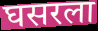
घसरला